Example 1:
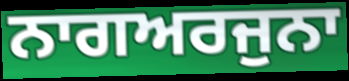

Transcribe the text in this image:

ਨਾਗਅਰਜੁਨਾ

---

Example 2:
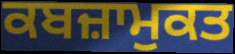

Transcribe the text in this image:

ਕਬਜ਼ਾਮੁਕਤ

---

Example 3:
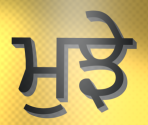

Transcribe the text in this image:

ਮੁਝੇ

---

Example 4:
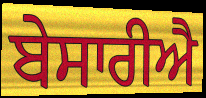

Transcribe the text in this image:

ਬੇਸਾਰੀਐ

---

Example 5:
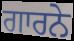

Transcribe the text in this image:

ਗਾਰਨੇ